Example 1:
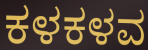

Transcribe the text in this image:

ಕಳಕಳವ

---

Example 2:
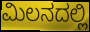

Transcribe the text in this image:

ಮಿಲನದಲ್ಲಿ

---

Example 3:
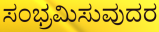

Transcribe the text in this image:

ಸಂಭ್ರಮಿಸುವುದರ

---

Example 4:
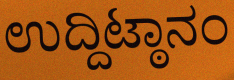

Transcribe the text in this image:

ಉದ್ದಿಟ್ಠಾನಂ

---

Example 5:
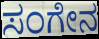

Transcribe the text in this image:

ಸಂಗೇನ